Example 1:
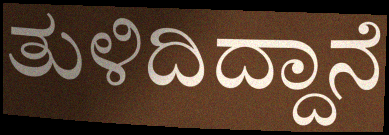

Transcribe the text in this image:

ತುಳಿದಿದ್ದಾನೆ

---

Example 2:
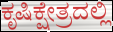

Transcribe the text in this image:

ಕೃಷಿಕ್ಷೇತ್ರದಲ್ಲಿ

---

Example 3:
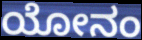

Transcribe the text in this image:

ಯೋನಂ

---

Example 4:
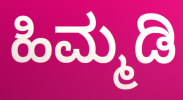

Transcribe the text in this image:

ಹಿಮ್ಮಡಿ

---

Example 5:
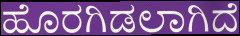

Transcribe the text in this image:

ಹೊರಗಿಡಲಾಗಿದೆ